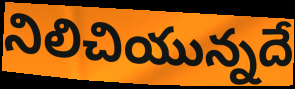
నిలిచియున్నదే